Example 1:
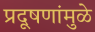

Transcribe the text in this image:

प्रदूषणांमुळे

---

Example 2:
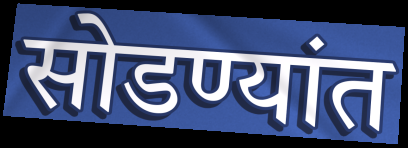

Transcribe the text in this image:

सोडण्यांत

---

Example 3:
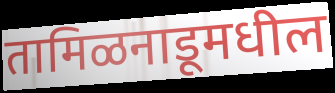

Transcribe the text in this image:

तामिळनाडूमधील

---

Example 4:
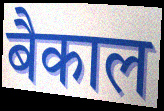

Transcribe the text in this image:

बैकाल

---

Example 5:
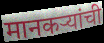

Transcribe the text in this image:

मानकऱ्यांची